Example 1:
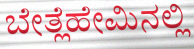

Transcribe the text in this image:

ಬೇತ್ಲೆಹೇಮಿನಲ್ಲಿ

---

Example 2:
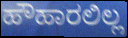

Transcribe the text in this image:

ಹೌಹಾರಲಿಲ್ಲ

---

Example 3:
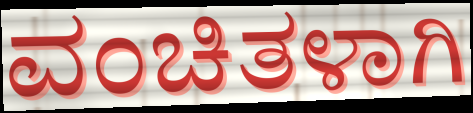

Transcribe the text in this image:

ವಂಚಿತಳಾಗಿ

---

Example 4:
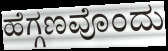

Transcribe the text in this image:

ಹೆಗ್ಗಣವೊಂದು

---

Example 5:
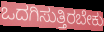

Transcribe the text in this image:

ಒದಗಿಸುತ್ತಿರಬೇಕು